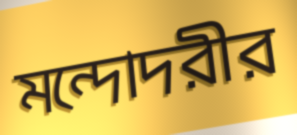
মন্দোদরীর